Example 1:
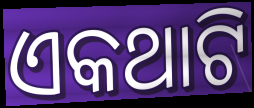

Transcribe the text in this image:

ଏକଥାଟି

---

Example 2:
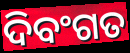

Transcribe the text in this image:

ଦିବଂଗତ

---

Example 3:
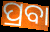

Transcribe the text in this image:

ପ୍ରବା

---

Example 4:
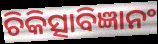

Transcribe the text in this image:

ଚିକିତ୍ସାବିଜ୍ଞାନଂ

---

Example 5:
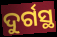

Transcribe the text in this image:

ଦୁର୍ଗସ୍ଥ